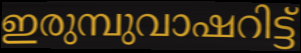
ഇരുമ്പുവാഷറിട്ട്